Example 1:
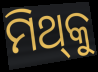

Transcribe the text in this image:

ମିଥ୍‍କୁ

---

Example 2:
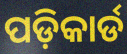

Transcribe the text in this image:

ପଡ଼ିକାର୍ଡ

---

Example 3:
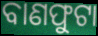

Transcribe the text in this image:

ବାଣଫୁଟା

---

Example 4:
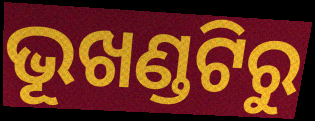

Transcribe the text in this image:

ଭୂଖଣ୍ଡଟିରୁ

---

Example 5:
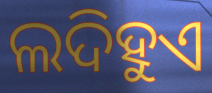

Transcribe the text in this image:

ଲଦିହୁଏ